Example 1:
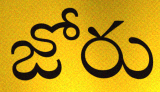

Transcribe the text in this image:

జోరు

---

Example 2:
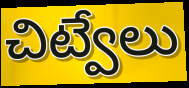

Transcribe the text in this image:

చిట్వేలు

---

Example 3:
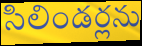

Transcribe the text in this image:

సిలిండర్లను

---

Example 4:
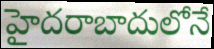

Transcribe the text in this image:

హైదరాబాదులోనే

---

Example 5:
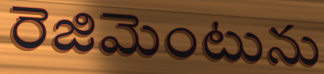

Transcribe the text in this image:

రెజిమెంటును